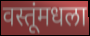
वस्तूंमधला